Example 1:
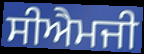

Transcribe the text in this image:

ਸੀਐਮਜੀ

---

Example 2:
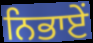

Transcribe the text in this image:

ਨਿਭਾਏਂ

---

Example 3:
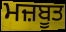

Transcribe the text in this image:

ਮਜ਼ਬੂਤ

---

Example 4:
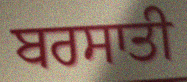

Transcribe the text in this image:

ਬਰਸਾਤੀ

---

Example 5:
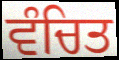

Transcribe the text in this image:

ਵੰਚਿਤ